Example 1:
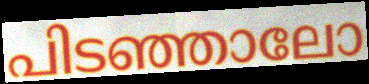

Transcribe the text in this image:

പിടഞ്ഞാലോ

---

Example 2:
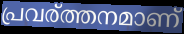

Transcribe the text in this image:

പ്രവര്ത്തനമാണ്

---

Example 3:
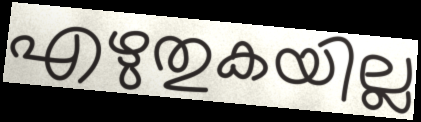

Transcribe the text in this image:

എഴുതുകയില്ല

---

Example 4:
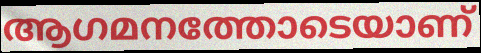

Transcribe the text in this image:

ആഗമനത്തോടെയാണ്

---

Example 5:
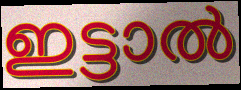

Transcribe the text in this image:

ഇട്ടാൽ